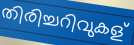
തിരിച്ചറിവുകള്